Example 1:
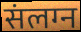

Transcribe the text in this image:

संलग्‍न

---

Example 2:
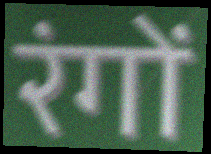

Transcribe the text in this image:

रंगों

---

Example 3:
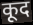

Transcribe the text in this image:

कूद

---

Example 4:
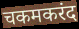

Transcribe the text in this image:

चकमकरंद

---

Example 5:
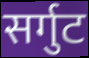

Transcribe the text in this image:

सर्गुट